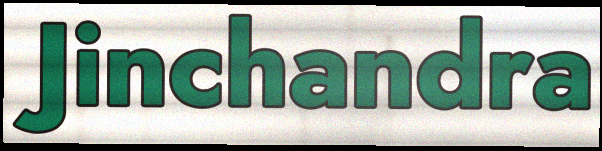
Jinchandra